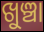
ଖୁଞ୍ଚା